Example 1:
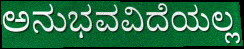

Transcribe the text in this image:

ಅನುಭವವಿದೆಯಲ್ಲ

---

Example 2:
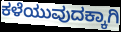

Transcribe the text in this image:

ಕಳೆಯುವುದಕ್ಕಾಗಿ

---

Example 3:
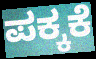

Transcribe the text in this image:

ಪಕ್ಕಕೆ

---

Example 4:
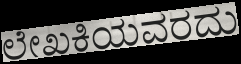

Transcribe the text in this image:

ಲೇಖಕಿಯವರದು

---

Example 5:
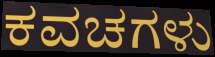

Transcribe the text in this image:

ಕವಚಗಳು